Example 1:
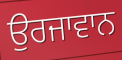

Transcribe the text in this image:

ਉਰਜਾਵਾਨ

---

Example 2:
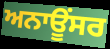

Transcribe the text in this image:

ਅਨਾਊਂਸਰ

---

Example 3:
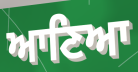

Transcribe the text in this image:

ਆਣਿਆ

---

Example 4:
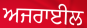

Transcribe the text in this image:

ਅਜਰਾਈਲ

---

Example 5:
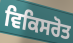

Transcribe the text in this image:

ਵਿਕਿਸਰੋਤ